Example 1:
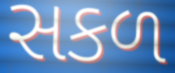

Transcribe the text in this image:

સકળ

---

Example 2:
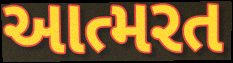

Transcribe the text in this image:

આત્મરત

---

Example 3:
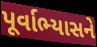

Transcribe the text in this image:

પૂર્વાભ્યાસને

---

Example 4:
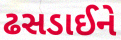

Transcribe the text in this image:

ઢસડાઈને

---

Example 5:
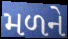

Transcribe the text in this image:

મળને